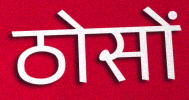
ठोसों